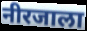
नीरजाला